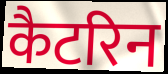
कैटरिन